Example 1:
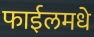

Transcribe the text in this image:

फाईलमधे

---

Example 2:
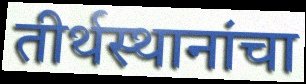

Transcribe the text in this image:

तीर्थस्थानांचा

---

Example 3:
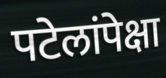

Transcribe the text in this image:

पटेलांपेक्षा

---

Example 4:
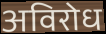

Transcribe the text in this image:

अविरोध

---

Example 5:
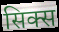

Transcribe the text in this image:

सिक्स